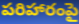
పరిహారంపై